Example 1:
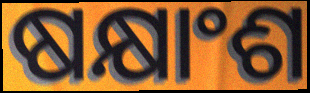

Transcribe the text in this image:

ଷକ୍ଷାଂଶ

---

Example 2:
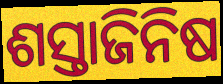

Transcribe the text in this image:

ଶସ୍ତାଜିନିଷ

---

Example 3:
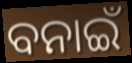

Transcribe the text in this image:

ବନାଇଁ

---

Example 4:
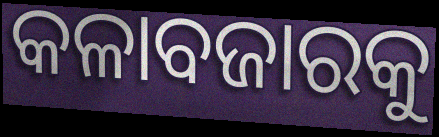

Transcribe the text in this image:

କଳାବଜାରକୁ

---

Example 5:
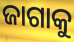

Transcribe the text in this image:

ଜାଗାକୁ